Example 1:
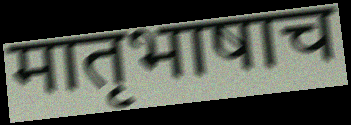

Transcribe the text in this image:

मातृभाषाच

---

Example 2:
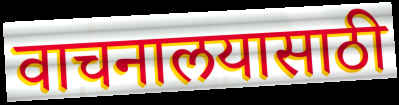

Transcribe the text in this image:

वाचनालयासाठी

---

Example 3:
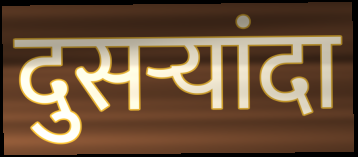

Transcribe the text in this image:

दुसर्‍यांदा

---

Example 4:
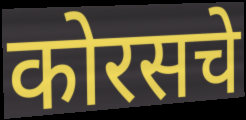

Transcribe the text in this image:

कोरसचे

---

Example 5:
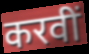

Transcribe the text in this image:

करवीं